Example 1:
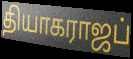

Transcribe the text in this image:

தியாகராஜப்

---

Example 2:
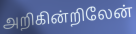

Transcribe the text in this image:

அறிகின்றிலேன்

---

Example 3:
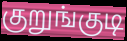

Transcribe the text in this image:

குறுங்குடி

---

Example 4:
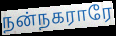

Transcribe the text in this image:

நன்நகராரே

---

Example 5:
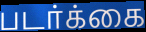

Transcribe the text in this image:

படர்க்கை